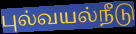
புல்வயல்நீடு